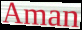
Aman